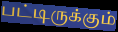
பட்டிருக்கும்